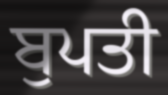
ਬੁਪਤੀ